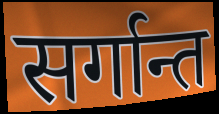
सर्गान्त